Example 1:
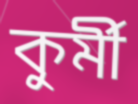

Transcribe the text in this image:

কুৰ্মী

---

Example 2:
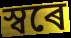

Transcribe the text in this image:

স্বৰে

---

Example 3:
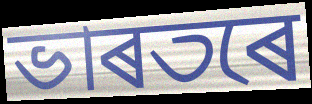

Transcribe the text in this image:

ভাৰতৰে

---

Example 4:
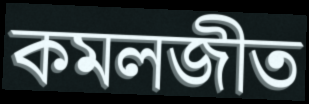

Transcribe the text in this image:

কমলজীত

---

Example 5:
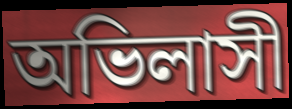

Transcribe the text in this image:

অভিলাসী